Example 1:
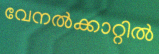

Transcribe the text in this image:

വേനൽക്കാറ്റിൽ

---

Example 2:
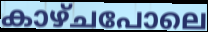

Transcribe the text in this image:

കാഴ്ചപോലെ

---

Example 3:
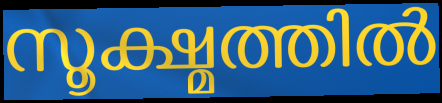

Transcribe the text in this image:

സൂക്ഷ്മത്തിൽ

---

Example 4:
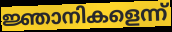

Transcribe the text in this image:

ജ്ഞാനികളെന്ന്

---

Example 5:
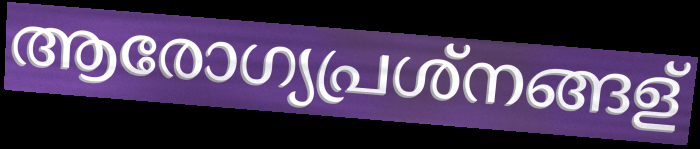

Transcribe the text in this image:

ആരോഗ്യപ്രശ്നങ്ങള്